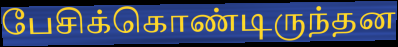
பேசிக்கொண்டிருந்தன